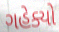
ગહેક્યો